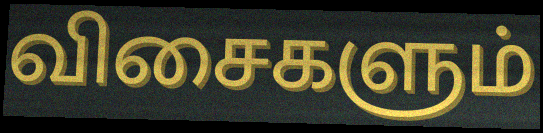
விசைகளும்